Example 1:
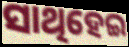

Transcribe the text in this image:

ସାଥିହେଇ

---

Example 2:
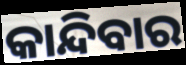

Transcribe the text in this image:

କାନ୍ଦିବାର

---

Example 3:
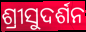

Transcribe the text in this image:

ଶ୍ରୀସୁଦର୍ଶନ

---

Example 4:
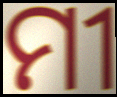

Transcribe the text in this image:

ମୀ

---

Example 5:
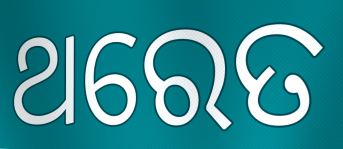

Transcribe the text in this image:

ଥରେତ